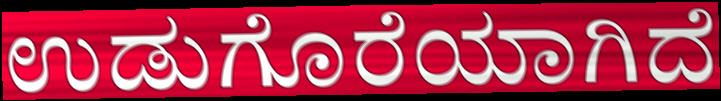
ಉಡುಗೊರೆಯಾಗಿದೆ